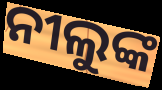
ନୀଲୁଙ୍କ